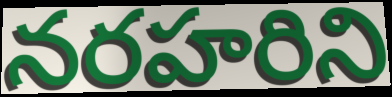
నరహరిని